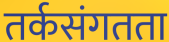
तर्कसंगतता